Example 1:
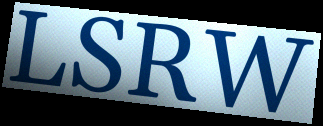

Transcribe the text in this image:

LSRW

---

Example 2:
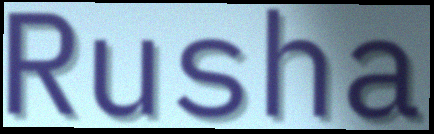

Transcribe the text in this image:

Rusha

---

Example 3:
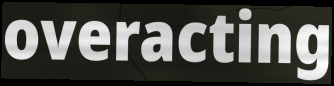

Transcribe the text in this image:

overacting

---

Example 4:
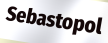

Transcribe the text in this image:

Sebastopol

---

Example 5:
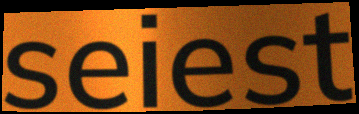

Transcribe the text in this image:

seiest